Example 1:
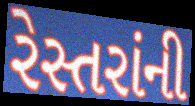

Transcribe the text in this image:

રેસ્તરાંની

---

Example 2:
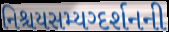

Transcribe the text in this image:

નિશ્ચયસમ્યગ્દર્શનની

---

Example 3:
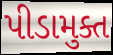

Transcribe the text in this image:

પીડામુક્ત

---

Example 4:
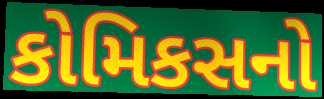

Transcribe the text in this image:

કોમિકસનો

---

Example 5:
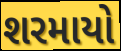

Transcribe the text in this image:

શરમાયો